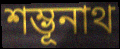
শম্ভূনাথ